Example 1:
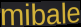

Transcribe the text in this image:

mibale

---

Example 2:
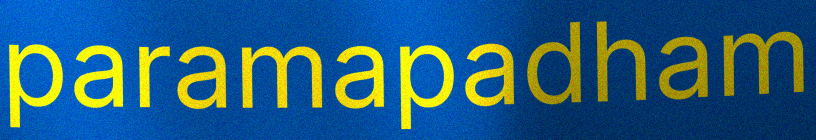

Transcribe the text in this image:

paramapadham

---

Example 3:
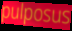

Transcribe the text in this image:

pulposus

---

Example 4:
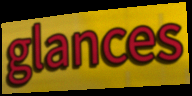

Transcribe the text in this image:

glances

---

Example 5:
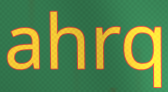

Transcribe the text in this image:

ahrq